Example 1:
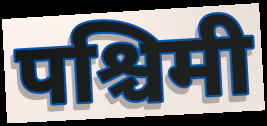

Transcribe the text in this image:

पश्चिमी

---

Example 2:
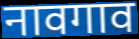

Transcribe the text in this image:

नावगाव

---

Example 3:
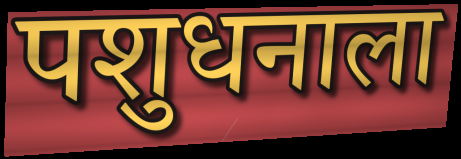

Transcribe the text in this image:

पशुधनाला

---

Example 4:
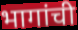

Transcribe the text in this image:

भागांची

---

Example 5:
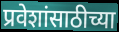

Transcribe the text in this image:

प्रवेशांसाठीच्या